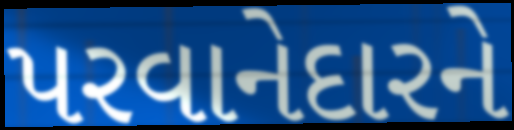
પરવાનેદારને